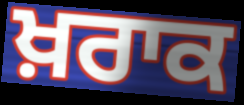
ਖ਼ਰਾਕ